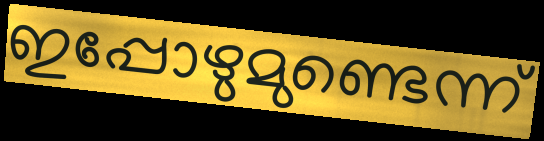
ഇപ്പോഴുമുണ്ടെന്ന്